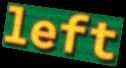
left